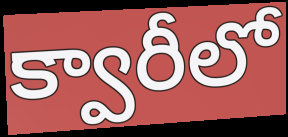
క్వారీలో